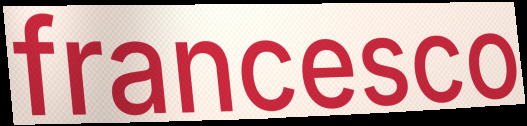
francesco